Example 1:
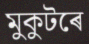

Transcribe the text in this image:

মুকুটৰে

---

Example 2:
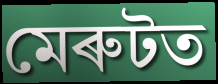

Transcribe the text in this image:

মেৰুটত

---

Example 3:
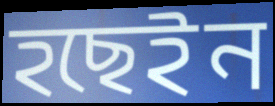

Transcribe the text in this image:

হছেইন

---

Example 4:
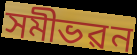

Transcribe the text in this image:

সমীভৱন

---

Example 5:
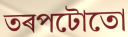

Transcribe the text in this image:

তৰপটোতো